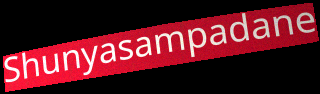
Shunyasampadane